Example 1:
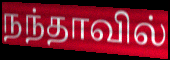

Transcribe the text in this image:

நந்தாவில்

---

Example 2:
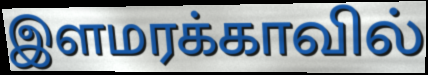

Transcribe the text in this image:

இளமரக்காவில்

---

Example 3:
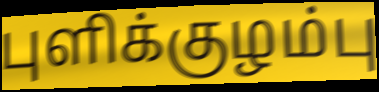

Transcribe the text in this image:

புளிக்குழம்பு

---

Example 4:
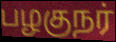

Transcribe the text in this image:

பழகுநர்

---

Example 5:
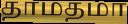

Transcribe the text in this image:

தாமதமா